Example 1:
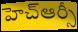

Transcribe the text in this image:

హెచ్ఆర్సీ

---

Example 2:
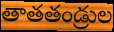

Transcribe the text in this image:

తాతతండ్రుల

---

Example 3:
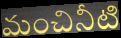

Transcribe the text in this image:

మంచినీటి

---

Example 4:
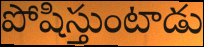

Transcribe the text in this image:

పోషిస్తుంటాడు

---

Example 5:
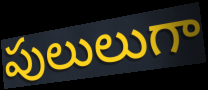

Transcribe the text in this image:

పులులుగా